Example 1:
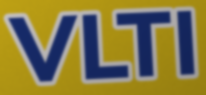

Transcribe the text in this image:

VLTI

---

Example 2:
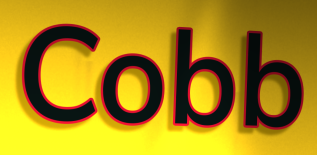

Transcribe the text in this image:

Cobb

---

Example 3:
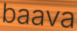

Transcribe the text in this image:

baava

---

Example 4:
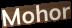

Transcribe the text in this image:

Mohor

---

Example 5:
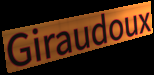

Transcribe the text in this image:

Giraudoux